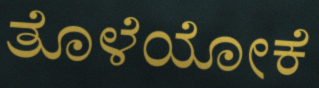
ತೊಳೆಯೋಕೆ